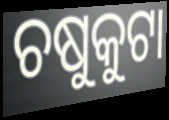
ଚଷୁକୁଟା